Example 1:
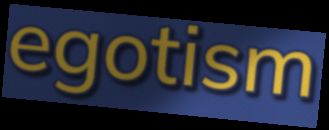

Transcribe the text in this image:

egotism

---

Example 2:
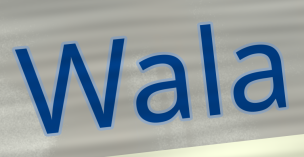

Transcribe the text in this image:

Wala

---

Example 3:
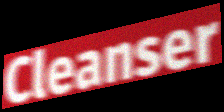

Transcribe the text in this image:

Cleanser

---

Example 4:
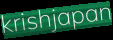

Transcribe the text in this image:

krishjapan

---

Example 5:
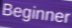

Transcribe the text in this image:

Beginner